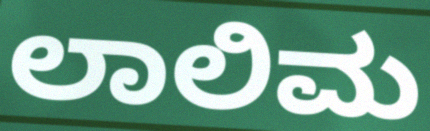
ಲಾಲಿಮ